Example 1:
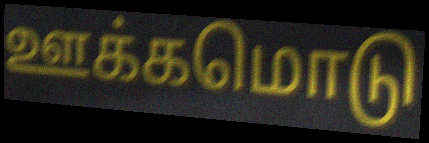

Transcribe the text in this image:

ஊக்கமொடு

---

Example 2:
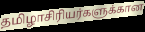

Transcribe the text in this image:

தமிழாசிரியர்களுக்கான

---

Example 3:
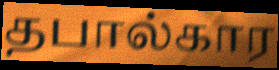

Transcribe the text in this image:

தபால்கார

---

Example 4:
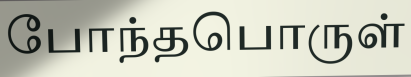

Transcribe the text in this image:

போந்தபொருள்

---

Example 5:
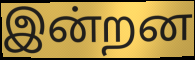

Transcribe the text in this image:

இன்றன